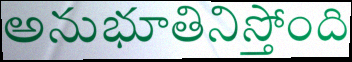
అనుభూతినిస్తోంది